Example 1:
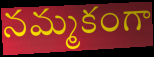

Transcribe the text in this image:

నమ్మకంగా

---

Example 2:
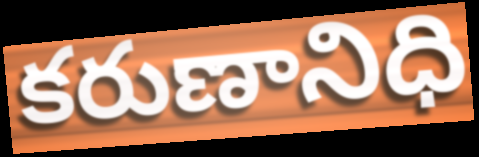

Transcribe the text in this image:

కరుణానిధి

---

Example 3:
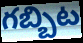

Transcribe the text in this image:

గబ్బిట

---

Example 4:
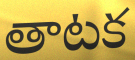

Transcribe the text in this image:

తాటక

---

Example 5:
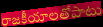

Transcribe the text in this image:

రాజకీయాలతోపాటు